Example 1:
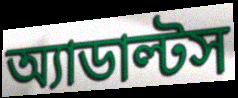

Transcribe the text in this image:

অ্যাডাল্টস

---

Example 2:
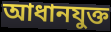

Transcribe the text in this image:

আধানযুক্ত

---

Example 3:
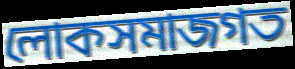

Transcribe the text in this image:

লোকসমাজগত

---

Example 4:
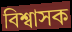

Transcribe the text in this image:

বিশ্বাসক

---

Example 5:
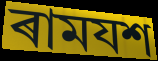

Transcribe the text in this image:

ৰামযশ